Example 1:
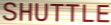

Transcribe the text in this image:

SHUTTLE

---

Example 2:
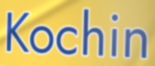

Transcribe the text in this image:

Kochin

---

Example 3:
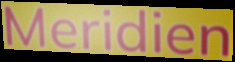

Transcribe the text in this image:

Meridien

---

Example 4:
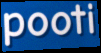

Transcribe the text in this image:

pooti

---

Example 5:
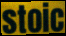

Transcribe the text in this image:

stoic